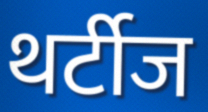
थर्टीज